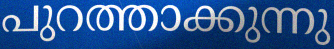
പുറത്താക്കുന്നു